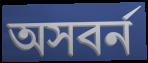
অসবর্ন